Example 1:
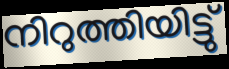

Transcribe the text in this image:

നിറുത്തിയിട്ടു്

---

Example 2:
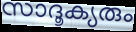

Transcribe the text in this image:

സാദൂക്യരും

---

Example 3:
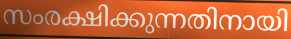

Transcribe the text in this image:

സംരക്ഷിക്കുന്നതിനായി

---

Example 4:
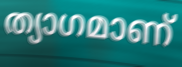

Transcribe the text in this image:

ത്യാഗമാണ്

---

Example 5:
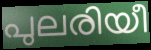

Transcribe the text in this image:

പുലരിയീ